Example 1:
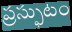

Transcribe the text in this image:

ప్రస్ఫుటం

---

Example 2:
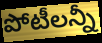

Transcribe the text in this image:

పోటీలన్నీ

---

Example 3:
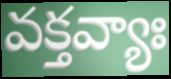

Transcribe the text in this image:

వక్తవ్యాః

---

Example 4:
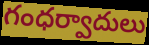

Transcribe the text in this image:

గంధర్వాదులు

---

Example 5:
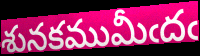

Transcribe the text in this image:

శునకముమీఁదఁ